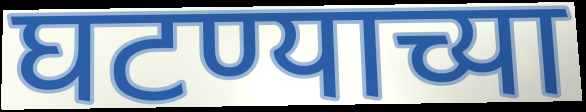
घटण्याच्या